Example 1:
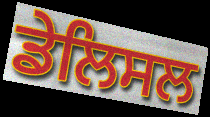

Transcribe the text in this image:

ਡੇਲਿਸਲ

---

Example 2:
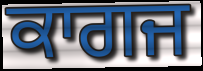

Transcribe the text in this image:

ਕਾਗਜ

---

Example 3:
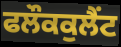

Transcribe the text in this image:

ਫਲੌਕਕੁਲੈਂਟ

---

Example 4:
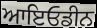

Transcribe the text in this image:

ਆਇਓਡੀਨ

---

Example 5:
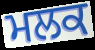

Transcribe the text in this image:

ਮਲਕ